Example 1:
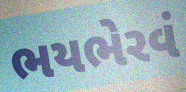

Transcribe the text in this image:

ભયભેરવં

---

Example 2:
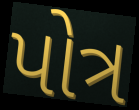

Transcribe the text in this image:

પોત્ર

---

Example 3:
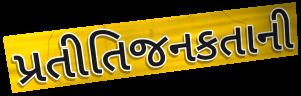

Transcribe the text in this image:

પ્રતીતિજનકતાની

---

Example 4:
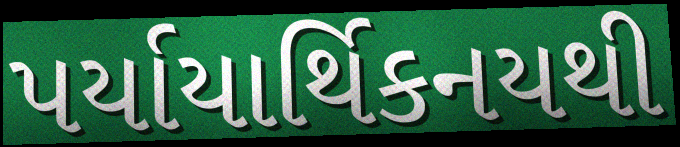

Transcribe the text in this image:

પર્યાયાર્થિકનયથી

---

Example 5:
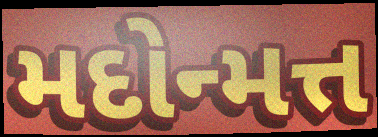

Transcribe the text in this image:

મદોન્મત્ત